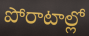
పోరాటాల్లో